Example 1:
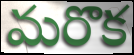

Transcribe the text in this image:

మరొక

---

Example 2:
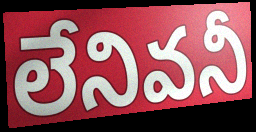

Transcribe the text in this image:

లేనివనీ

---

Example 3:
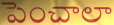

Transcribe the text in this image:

పెంచాలా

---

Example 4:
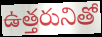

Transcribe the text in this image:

ఉత్తరునితో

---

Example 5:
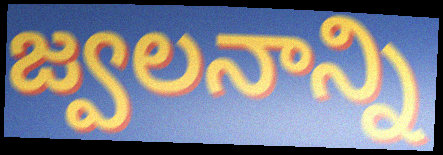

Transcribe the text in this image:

జ్వలనాన్ని